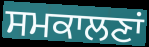
ਸਮਕਾਲਣਾਂ